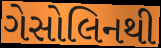
ગેસોલિનથી